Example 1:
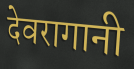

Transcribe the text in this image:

देवरागानी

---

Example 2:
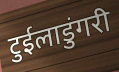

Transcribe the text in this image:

टुईलाडुंगरी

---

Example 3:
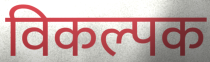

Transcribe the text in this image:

विकल्पक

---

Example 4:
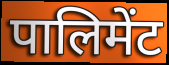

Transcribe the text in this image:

पालिमेंट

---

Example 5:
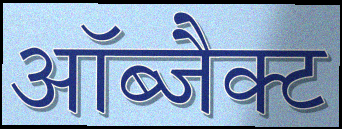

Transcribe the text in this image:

ऑब्जैक्ट